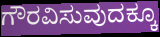
ಗೌರವಿಸುವುದಕ್ಕೂ